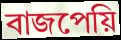
বাজপেয়ি